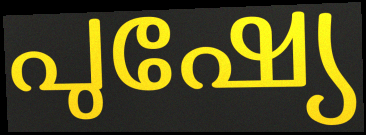
പുഷ്യേ